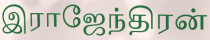
இராஜேந்திரன்